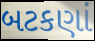
બટકણાં